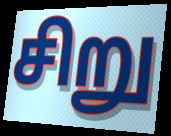
சிறு